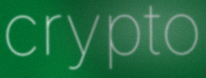
crypto